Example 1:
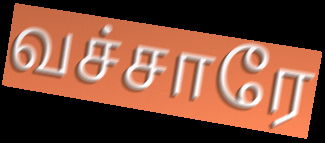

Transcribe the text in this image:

வச்சாரே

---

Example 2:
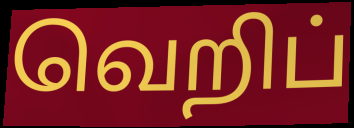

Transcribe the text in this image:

வெறிப்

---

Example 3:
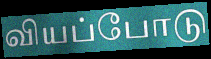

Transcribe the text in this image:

வியப்போடு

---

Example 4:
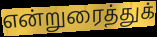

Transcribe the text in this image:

என்றுரைத்துக்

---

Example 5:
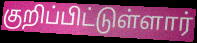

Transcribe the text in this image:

குறிப்பிட்டுள்ளார்